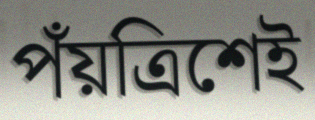
পঁয়ত্রিশেই